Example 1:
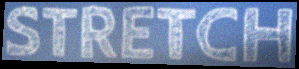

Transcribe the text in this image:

STRETCH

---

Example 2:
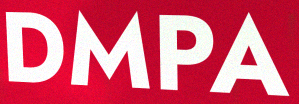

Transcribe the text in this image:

DMPA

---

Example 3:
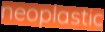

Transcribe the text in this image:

neoplastic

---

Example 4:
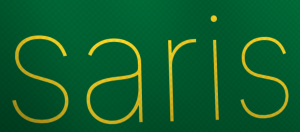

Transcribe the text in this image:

saris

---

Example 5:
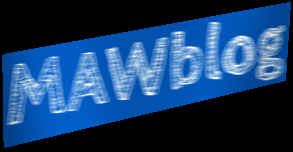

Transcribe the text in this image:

MAWblog